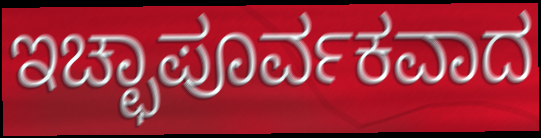
ಇಚ್ಛಾಪೂರ್ವಕವಾದ